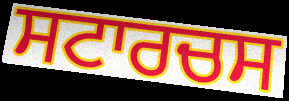
ਸਟਾਰਚਸ